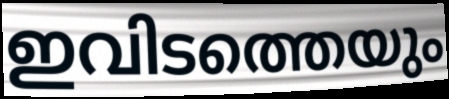
ഇവിടത്തെയും